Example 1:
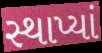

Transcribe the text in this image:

સ્થાપ્યાં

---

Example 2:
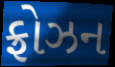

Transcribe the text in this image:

ફ્રોઝન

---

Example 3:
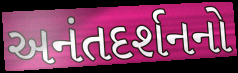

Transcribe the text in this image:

અનંતદર્શનનો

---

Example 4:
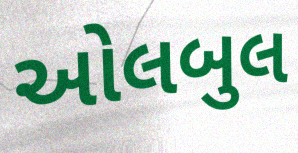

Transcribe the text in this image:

ઓલબુલ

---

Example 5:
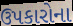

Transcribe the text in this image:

ઉપકારોના